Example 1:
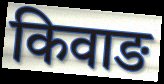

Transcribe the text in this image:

किवाङ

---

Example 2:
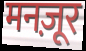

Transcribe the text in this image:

मनज़ूर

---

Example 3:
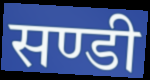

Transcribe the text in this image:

सण्डी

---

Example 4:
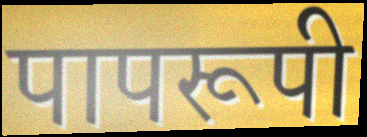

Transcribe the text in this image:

पापरूपी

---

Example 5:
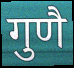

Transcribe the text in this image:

गुणै